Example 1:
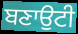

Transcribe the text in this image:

ਬਣਾਉਟੀ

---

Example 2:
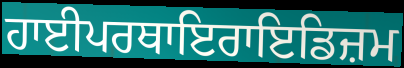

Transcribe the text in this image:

ਹਾਈਪਰਥਾਇਰਾਇਡਿਜ਼ਮ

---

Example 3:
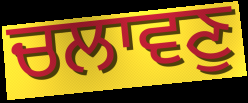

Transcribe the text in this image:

ਚਲਾਵਣੁ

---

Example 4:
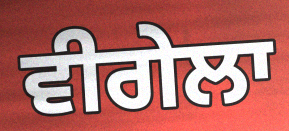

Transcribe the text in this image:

ਵੀਗੇਲਾ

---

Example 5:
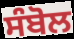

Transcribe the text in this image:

ਸੰਬੋਲ